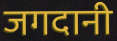
जगदानी